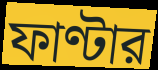
ফাণ্টার